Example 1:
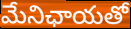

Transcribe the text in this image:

మేనిఛాయతో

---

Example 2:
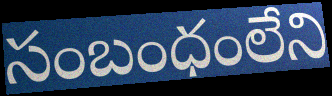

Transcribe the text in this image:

సంబంధంలేని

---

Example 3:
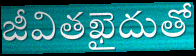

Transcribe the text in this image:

జీవితఖైదుతో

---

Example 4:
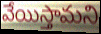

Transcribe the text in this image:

వేయిస్తామని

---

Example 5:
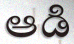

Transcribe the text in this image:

ఆడి